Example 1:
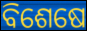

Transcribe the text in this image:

ବିଶେଷେ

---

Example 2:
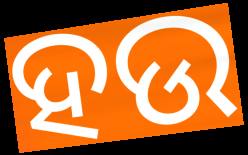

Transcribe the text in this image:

ହଉ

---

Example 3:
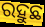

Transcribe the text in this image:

ରହୁଛ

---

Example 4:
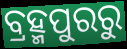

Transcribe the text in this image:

ବ୍ରହ୍ମପୁରରୁ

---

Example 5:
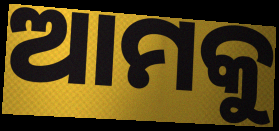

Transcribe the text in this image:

ଆମକୁ